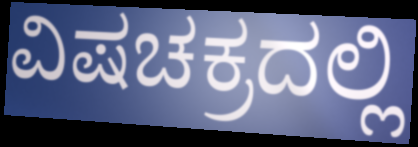
ವಿಷಚಕ್ರದಲ್ಲಿ